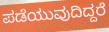
ಪಡೆಯುವುದಿದ್ದರೆ